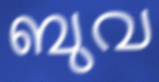
ബുവ